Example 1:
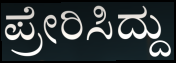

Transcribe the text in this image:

ಪ್ರೇರಿಸಿದ್ದು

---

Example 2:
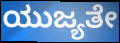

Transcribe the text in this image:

ಯುಜ್ಯತೇ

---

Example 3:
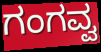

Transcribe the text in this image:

ಗಂಗವ್ವ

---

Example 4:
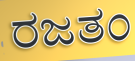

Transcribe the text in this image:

ರಜತಂ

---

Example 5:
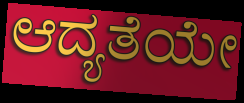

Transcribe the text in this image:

ಆದ್ಯತೆಯೇ